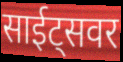
साईट्सवर